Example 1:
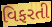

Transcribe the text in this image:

વિફરતી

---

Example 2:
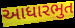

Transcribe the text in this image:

આધારભુત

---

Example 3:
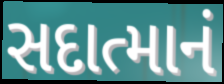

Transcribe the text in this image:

સદાત્માનં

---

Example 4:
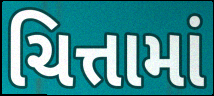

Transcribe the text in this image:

ચિત્તામાં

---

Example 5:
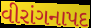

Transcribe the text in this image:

વીરાંગનાપદ